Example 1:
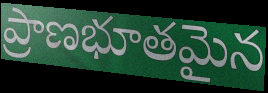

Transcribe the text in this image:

ప్రాణభూతమైన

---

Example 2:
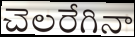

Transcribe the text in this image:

చెలరేగినా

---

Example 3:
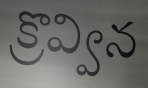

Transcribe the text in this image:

క్రొవ్విన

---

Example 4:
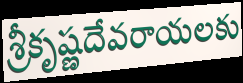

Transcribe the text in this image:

శ్రీకృష్ణదేవరాయలకు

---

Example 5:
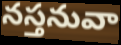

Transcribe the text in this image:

నస్తనువా